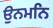
ਉਨਮਨਿ